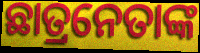
ଛାତ୍ରନେତାଙ୍କ